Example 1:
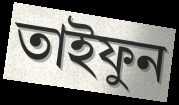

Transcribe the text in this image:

তাইফুন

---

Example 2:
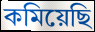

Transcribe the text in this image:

কমিয়েছি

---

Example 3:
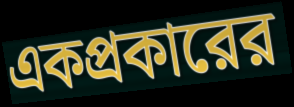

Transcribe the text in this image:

একপ্রকারের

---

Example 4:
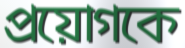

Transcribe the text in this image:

প্রয়োগকে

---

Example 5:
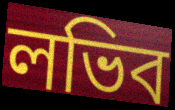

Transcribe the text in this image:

লভিব